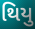
થિયુ